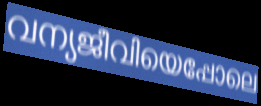
വന്യജീവിയെപ്പോലെ